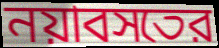
নয়াবসতের